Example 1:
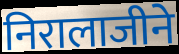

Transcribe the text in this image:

निरालाजीने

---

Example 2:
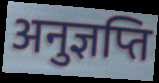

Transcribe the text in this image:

अनुज्ञप्ति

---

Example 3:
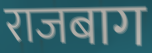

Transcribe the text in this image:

राजबाग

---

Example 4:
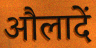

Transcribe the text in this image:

औलादें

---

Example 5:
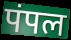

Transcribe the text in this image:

पंपल